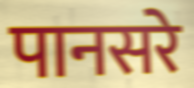
पानसरे